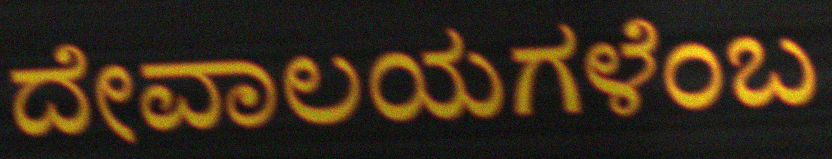
ದೇವಾಲಯಗಳೆಂಬ